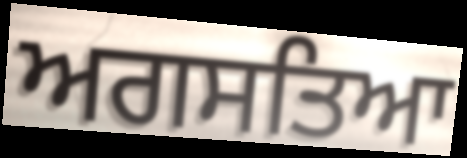
ਅਗਸਤਿਆ